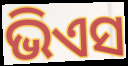
ଭିଏସ